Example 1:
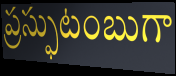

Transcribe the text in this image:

ప్రస్ఫుటంబుగా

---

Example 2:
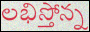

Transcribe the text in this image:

లభిస్తోన్న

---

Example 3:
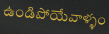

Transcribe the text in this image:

ఉండిపోయేవాళ్ళం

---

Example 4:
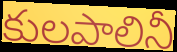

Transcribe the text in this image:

కులపాలినీ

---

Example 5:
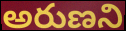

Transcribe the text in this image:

అరుణని